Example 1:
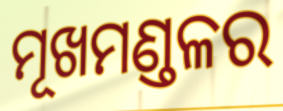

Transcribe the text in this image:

ମୂଖମଣ୍ଡଳର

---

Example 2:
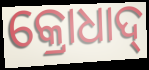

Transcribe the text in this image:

କ୍ରୋଧାଦ୍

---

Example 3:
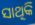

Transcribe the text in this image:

ସାଥିକି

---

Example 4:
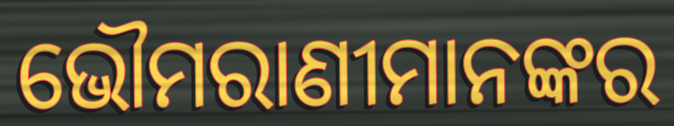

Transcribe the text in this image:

ଭୌମରାଣୀମାନଙ୍କର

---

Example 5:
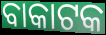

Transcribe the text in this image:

ବାକାଟକ